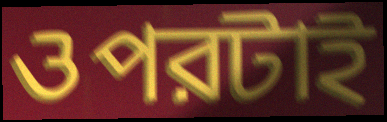
ওপরটাই